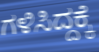
ಗಳಿಸಿದ್ದಕ್ಕೆ